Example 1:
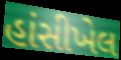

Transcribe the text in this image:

હાંસીખેલ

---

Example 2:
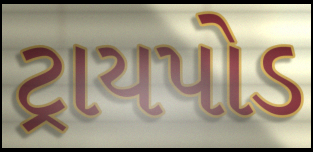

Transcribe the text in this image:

ટ્રાયપોડ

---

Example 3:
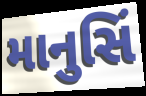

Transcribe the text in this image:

માનુસિં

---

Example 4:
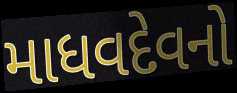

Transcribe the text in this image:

માધવદેવનો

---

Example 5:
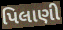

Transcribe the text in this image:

પિલાણી